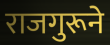
राजगुरूने